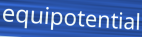
equipotential